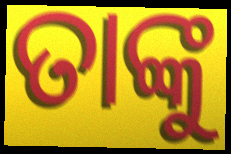
ତାଙ୍କୁ